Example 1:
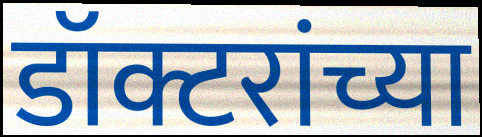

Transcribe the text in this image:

डॉक्टरांच्या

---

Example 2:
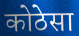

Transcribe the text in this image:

कोठेसा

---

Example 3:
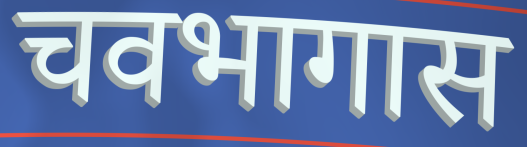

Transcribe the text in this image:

चवभागास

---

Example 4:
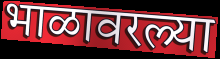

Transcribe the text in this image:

भाळावरल्या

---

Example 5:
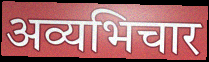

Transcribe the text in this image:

अव्यभिचार